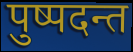
पुष्पदन्त